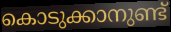
കൊടുക്കാനുണ്ട്